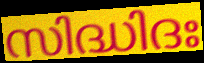
സിദ്ധിദഃ